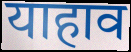
याहाव